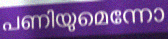
പണിയുമെന്നോ